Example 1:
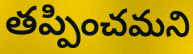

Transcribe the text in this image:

తప్పించమని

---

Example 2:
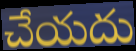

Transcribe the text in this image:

చేయదు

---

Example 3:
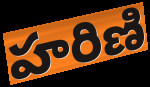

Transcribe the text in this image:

హరిణి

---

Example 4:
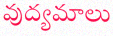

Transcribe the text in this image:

వుద్యమాలు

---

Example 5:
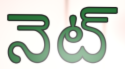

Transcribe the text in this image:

నెట్